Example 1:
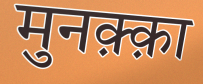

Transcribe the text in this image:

मुनक़्क़ा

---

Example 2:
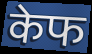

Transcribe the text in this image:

केफ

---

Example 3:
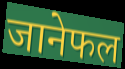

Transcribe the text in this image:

जानेफल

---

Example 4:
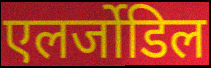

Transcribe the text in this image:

एलर्जोडिल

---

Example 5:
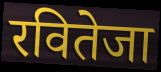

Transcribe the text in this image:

रवितेजा